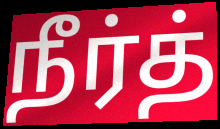
நீர்த்